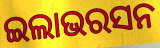
ଇଲାଭରସନ